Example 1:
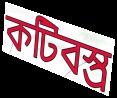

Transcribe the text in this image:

কটিবস্ত্র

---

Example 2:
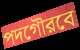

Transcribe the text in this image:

পদগৌরবে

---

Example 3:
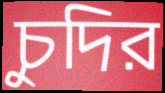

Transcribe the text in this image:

চুদির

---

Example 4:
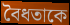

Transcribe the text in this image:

বৈধতাকে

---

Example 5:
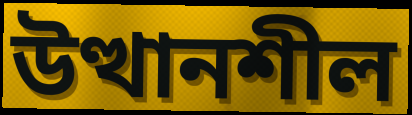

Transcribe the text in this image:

উত্থানশীল